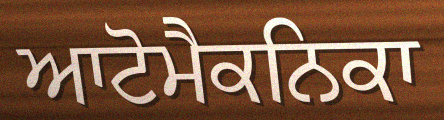
ਆਟੋਮੈਕਨਿਕਾ